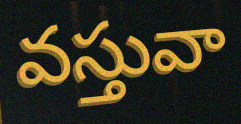
వస్తువా